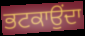
ਭਟਕਾਉਂਦਾ